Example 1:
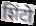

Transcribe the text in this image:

शिंटो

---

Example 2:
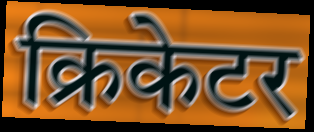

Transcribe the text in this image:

क्रिकेटर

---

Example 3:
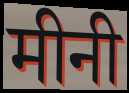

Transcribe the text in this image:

मीनी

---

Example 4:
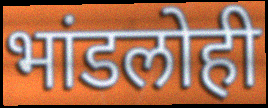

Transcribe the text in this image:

भांडलोही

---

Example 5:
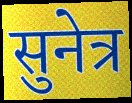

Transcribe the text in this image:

सुनेत्र